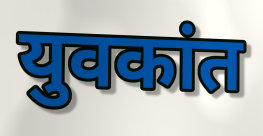
युवकांत